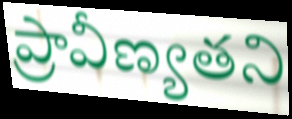
ప్రావీణ్యతని